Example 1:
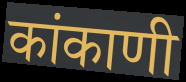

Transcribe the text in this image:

कांकाणी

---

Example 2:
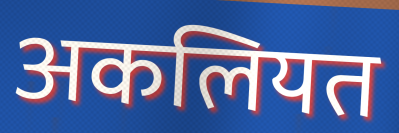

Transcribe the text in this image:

अकलियत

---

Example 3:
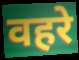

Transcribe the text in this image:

वहरे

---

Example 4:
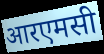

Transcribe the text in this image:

आरएमसी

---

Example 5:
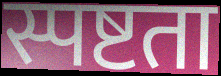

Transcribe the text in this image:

स्पष्टता